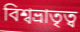
বিশ্বভ্রাতৃত্ব